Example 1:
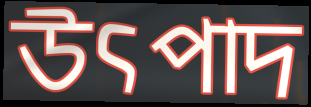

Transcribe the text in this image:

উৎপাদ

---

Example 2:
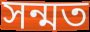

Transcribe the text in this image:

সন্মত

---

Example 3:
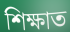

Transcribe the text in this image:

শিক্ষাত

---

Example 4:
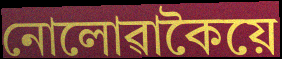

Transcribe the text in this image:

নোলোৱাকৈয়ে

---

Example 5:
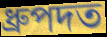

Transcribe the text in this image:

ধ্ৰুপদত